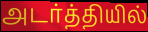
அடர்த்தியில்